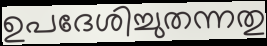
ഉപദേശിച്ചുതന്നതു